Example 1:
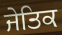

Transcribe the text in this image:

ਜੇਤਿਕ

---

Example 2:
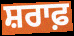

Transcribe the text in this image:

ਸ਼ਰਾਫ਼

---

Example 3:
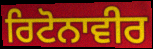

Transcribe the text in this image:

ਰਿਟੋਨਾਵੀਰ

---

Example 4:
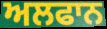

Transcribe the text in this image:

ਅਲਫਾਨ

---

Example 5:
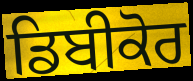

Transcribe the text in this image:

ਡਿਬੀਕੋਰ